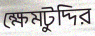
ক্ষেমটুদ্দির